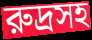
রুদ্রসহ